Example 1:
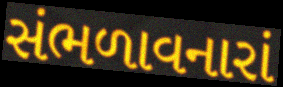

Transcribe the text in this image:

સંભળાવનારાં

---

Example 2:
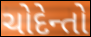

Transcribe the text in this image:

ચોદેન્તો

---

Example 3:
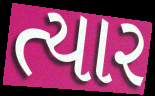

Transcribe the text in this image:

ત્‍યાર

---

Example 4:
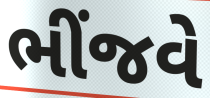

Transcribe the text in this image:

ભીંજવે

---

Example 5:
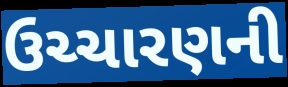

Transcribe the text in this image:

ઉચ્ચારણની